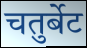
चतुर्बेट